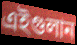
এইগুলান